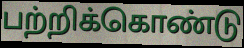
பற்றிக்கொண்டு